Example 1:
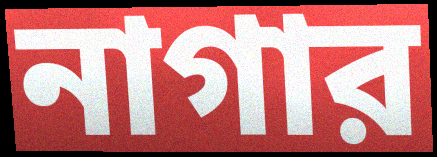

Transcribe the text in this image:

নাগার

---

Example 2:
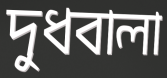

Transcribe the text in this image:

দুধবালা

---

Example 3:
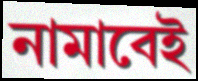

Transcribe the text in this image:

নামাবেই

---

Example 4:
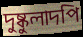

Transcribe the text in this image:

দুষ্কুলাদপি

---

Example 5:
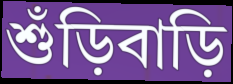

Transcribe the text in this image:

শুঁড়িবাড়ি